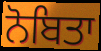
ਨੋਬਿਤਾ